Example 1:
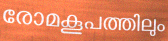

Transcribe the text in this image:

രോമകൂപത്തിലും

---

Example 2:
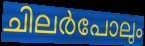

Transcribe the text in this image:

ചിലർപോലും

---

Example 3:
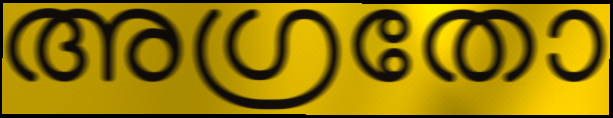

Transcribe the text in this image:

അഗ്രതോ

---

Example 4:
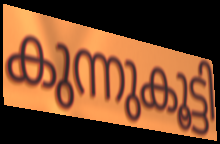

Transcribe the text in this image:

കുന്നുകൂട്ടി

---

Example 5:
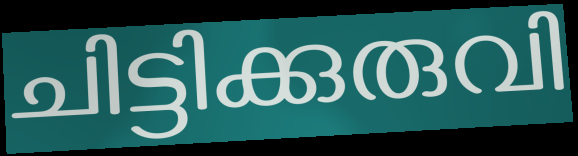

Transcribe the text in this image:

ചിട്ടിക്കുരുവി